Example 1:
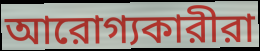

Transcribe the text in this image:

আরোগ্যকারীরা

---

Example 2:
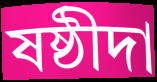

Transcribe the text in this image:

ষষ্ঠীদা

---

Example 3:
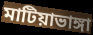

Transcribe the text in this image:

মাটিয়াভাঙ্গা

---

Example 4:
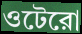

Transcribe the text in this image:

ওটেরো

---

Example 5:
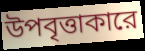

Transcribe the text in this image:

উপবৃত্তাকারে